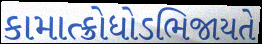
કામાત્ક્રોધોઽભિજાયતે